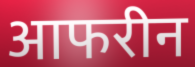
आफरीन